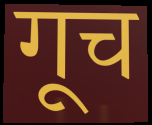
गूच